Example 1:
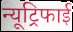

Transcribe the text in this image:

न्यूट्रिफाई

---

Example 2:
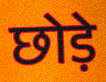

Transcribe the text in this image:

छोड़े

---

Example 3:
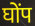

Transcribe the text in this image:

घोंप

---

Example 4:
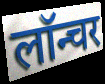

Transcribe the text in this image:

लॉन्चर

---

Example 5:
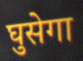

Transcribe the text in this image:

घुसेगा